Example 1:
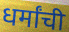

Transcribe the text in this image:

धर्मांची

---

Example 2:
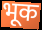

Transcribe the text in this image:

भूक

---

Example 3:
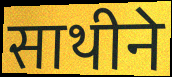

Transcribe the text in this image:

साथीने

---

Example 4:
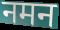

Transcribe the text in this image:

नमन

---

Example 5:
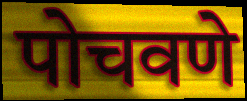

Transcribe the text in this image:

पोचवणे